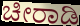
ಚೀರಾಡಿ